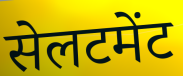
सेलटमेंट